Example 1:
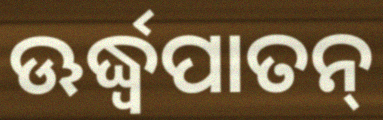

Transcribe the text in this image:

ଊର୍ଦ୍ଧ୍ବପାତନ୍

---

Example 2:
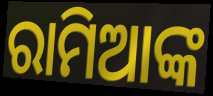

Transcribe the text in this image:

ରାମିଆଙ୍କ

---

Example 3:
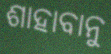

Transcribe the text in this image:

ଶାହାବାନୁ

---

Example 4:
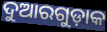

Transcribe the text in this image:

ଦୁଆରଗୁଡ଼ାକ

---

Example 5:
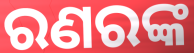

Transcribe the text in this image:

ରଣରଙ୍କ